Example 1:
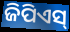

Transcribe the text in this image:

ଜିପିଏସ୍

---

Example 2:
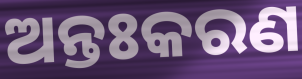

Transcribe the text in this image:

ଅନ୍ତଃକରଣ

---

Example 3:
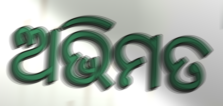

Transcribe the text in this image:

ଅଭିମତ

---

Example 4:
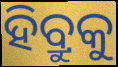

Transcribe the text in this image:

ହିବ୍ରୁକୁ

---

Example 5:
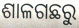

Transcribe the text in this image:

ଶାଳଗଛରୁ